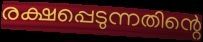
രക്ഷപ്പെടുന്നതിന്റെ